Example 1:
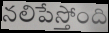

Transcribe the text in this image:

నలిపేస్తోంది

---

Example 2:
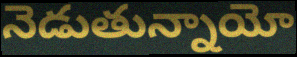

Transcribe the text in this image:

నెడుతున్నాయో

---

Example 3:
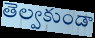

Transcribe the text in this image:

తెల్వకుండా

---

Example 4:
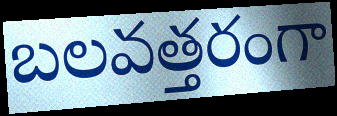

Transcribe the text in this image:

బలవత్తరంగా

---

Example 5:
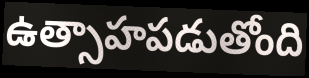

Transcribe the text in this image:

ఉత్సాహపడుతోంది